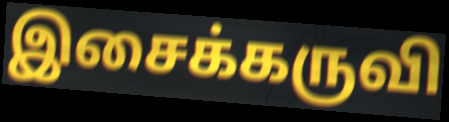
இசைக்கருவி